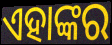
ଏହାଙ୍କର